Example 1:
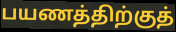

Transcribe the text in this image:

பயணத்திற்குத்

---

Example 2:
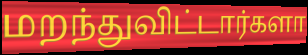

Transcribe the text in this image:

மறந்துவிட்டார்களா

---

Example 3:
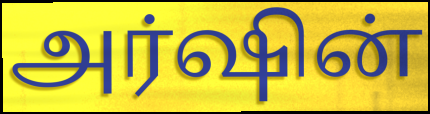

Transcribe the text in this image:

அர்ஷின்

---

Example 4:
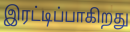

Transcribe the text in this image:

இரட்டிப்பாகிறது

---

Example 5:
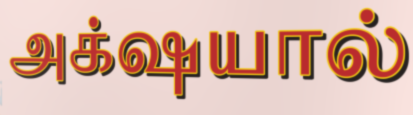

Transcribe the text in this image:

அக்‌ஷயால்